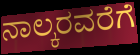
ನಾಲ್ಕರವರೆಗೆ